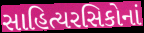
સાહિત્યરસિકોનાં